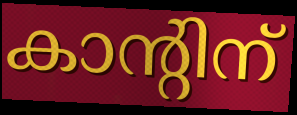
കാന്റിന്